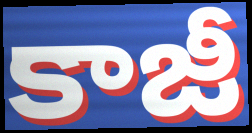
కాజీ